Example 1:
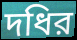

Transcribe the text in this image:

দধির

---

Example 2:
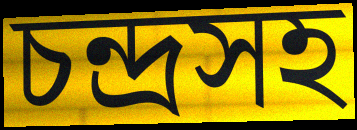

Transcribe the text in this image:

চন্দ্রসহ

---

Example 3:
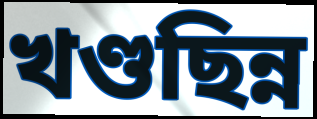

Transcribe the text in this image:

খণ্ডছিন্ন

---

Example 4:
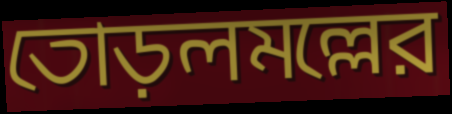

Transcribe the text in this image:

তোড়লমল্লের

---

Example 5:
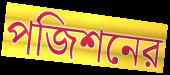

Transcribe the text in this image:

পজিশনের